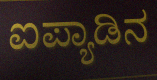
ಐಪ್ಯಾಡಿನ